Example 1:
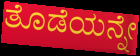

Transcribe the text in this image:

ತೊಡೆಯನ್ನೇ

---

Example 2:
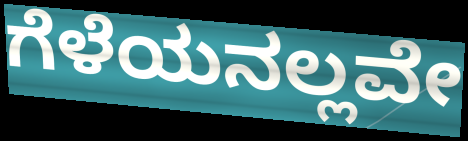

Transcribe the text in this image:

ಗೆಳೆಯನಲ್ಲವೇ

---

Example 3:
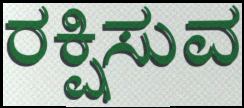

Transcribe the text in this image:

ರಕ್ಷಿಸುವ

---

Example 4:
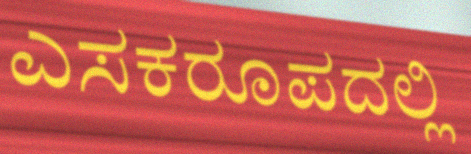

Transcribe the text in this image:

ಎಸಕರೂಪದಲ್ಲಿ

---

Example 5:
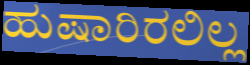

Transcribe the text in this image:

ಹುಷಾರಿರಲಿಲ್ಲ